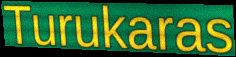
Turukaras